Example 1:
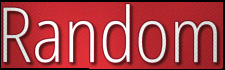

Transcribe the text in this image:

Random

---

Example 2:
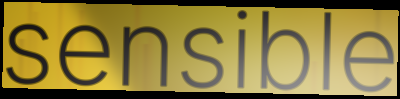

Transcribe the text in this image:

sensible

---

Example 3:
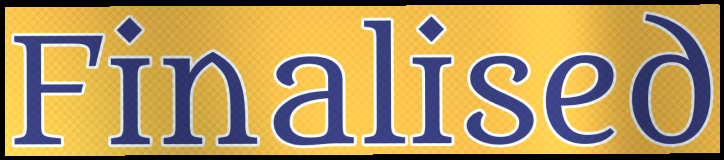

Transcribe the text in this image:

Finalised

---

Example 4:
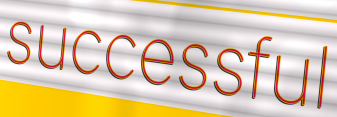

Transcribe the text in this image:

successful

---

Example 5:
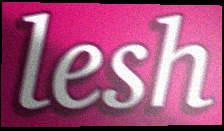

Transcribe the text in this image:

lesh